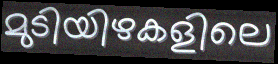
മുടിയിഴകളിലെ